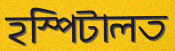
হস্পিটালত